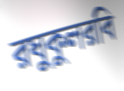
রঘুকুলরবি